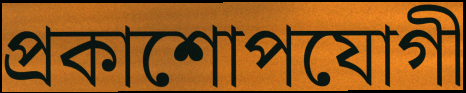
প্রকাশোপযোগী